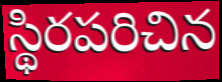
స్థిరపరిచిన